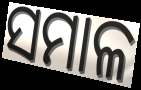
ସମାଳ